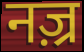
नज़्र